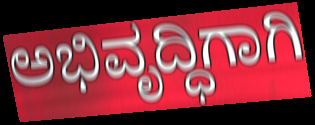
ಅಭಿವೃದ್ಧಿಗಾಗಿ